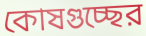
কোষগুচ্ছের